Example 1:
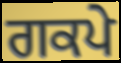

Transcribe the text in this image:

ਗਕਪੇ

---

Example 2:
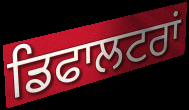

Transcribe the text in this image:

ਡਿਫਾਲਟਰਾਂ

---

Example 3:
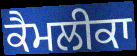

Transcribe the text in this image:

ਕੈਮਲੀਕਾ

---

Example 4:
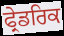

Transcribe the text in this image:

ਫ੍ਰੇਡਰਿਕ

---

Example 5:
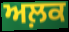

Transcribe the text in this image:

ਅਲ਼ਕ